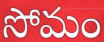
సోమం